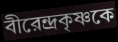
বীরেন্দ্রকৃষ্ণকে